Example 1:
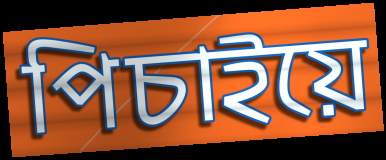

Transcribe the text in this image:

পিচাইয়ে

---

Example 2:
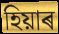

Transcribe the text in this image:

হিয়াৰ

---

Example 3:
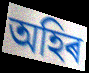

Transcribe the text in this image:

অহিৰ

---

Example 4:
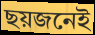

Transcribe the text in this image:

ছয়জনেই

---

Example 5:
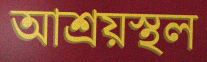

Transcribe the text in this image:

আশ্ৰয়স্থল